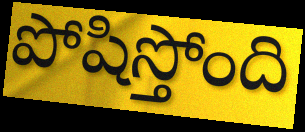
పోషిస్తోంది